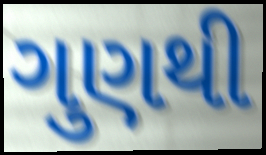
ગુણથી